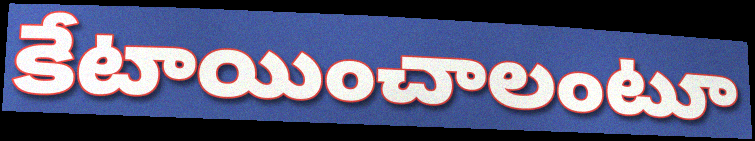
కేటాయించాలంటూ